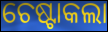
ଚେଷ୍ଟାକଲା